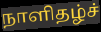
நாளிதழ்ச்